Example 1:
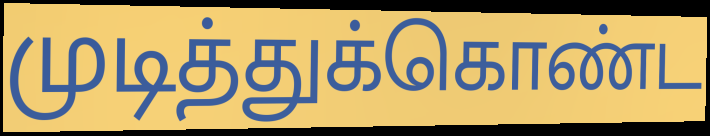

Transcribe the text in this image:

முடித்துக்கொண்ட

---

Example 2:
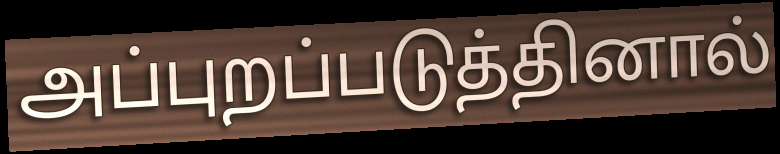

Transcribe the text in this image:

அப்புறப்படுத்தினால்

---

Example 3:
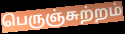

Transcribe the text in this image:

பெருஞ்சுற்றம்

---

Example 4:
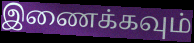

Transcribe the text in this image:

இணைக்கவும்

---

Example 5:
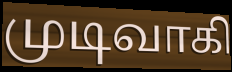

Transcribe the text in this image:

முடிவாகி